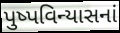
પુષ્પવિન્યાસનાં